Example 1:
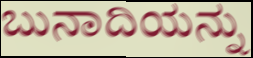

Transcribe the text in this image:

ಬುನಾದಿಯನ್ನು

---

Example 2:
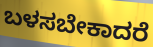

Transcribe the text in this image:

ಬಳಸಬೇಕಾದರೆ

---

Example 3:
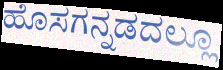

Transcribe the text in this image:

ಹೊಸಗನ್ನಡದಲ್ಲೂ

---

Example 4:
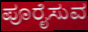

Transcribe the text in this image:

ಪೂರೈಸುವ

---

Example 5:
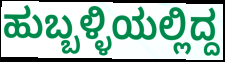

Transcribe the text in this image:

ಹುಬ್ಬಳ್ಳಿಯಲ್ಲಿದ್ದ